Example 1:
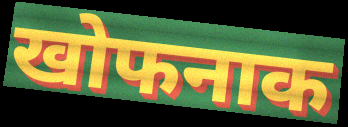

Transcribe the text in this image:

खोफनाक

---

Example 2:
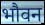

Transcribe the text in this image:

भौवन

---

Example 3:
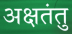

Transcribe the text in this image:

अक्षतंतु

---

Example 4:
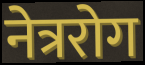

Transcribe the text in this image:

नेत्ररोग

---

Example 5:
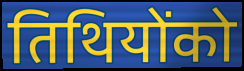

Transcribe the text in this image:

तिथियोंको